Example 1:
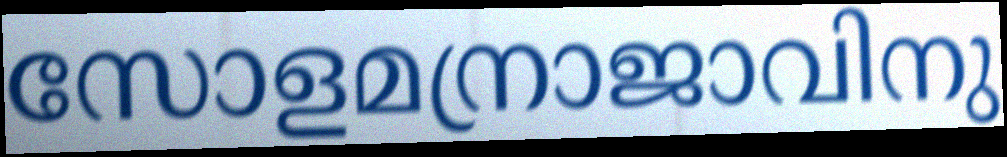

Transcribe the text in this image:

സോളമന്രാജാവിനു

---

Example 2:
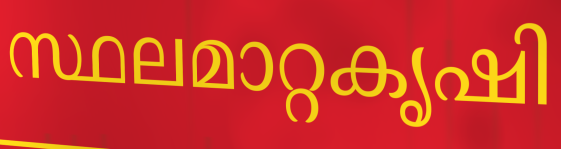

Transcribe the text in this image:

സ്ഥലമാറ്റകൃഷി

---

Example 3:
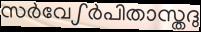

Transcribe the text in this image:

സർവേഽർപിതാസ്തദു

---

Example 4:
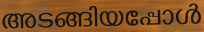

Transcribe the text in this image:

അടങ്ങിയപ്പോൾ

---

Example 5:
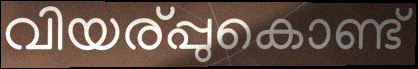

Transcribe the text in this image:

വിയര്പ്പുകൊണ്ട്